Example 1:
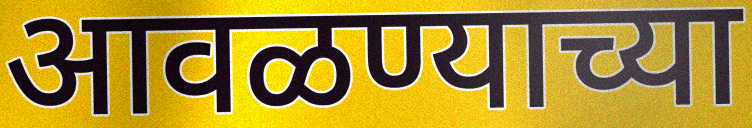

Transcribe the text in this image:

आवळण्याच्या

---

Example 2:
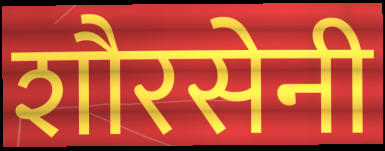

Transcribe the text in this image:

शौरसेनी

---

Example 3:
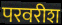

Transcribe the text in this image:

परवरीश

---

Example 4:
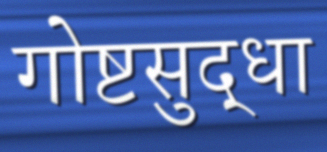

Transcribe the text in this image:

गोष्टसुद्धा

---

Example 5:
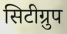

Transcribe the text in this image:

सिटीग्रुप